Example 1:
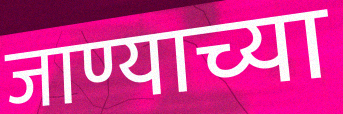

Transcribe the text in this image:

जाण्याच्या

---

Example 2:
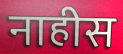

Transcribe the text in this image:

नाहीस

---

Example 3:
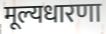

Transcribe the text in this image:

मूल्यधारणा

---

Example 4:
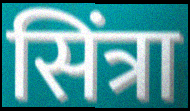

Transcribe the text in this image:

सिंत्रा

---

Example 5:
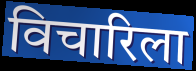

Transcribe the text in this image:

विचारिला